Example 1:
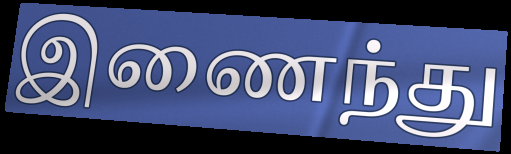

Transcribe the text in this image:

இணைந்து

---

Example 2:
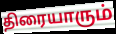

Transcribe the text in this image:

திரையாரும்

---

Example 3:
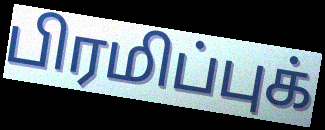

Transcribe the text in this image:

பிரமிப்புக்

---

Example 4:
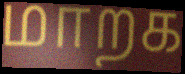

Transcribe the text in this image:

மாறக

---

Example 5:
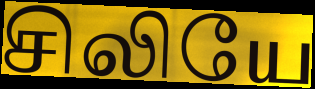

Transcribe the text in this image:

சிலியே